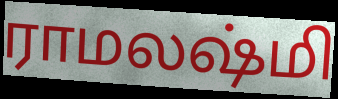
ராமலஷ்மி